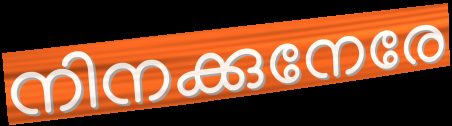
നിനക്കുനേരേ